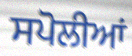
ਸਪੋਲੀਆਂ